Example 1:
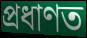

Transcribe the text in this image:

প্রধাণত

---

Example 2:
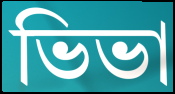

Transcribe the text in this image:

ভিভা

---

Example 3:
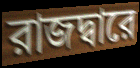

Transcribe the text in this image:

রাজদ্বারে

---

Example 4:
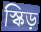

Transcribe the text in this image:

স্কিড়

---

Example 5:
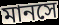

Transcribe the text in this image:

মানসে